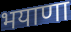
भयाणा